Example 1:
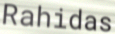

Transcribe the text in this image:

Rahidas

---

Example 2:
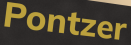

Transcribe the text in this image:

Pontzer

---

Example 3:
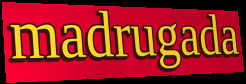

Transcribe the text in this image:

madrugada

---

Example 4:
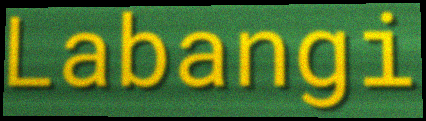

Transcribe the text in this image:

Labangi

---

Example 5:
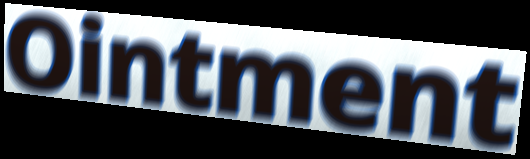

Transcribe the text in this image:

Ointment